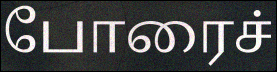
போரைச்